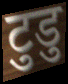
टुडु